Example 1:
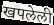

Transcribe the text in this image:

खपलेली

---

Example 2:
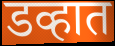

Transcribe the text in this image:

डव्हात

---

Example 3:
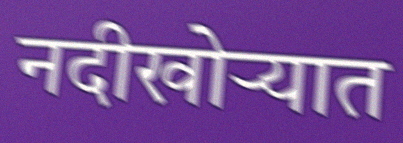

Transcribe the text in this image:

नदीखोर्‍यात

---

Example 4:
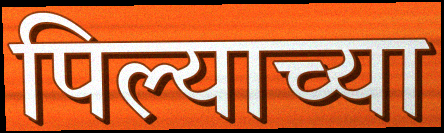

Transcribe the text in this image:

पिल्याच्या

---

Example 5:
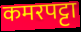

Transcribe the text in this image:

कमरपट्टा